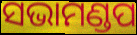
ସଭାମଣ୍ଡପ